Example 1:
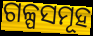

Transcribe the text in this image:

ଗଳ୍ପସମୂହ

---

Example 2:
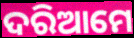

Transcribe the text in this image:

ଦରିଆମେ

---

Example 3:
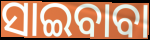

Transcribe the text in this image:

ସାଇବାବା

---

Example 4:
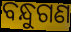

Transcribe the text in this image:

ବନ୍ଧୁଗଣ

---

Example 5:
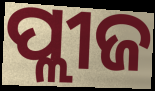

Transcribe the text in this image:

ପ୍ଲୀଜ